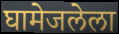
घामेजलेला